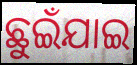
ଛୁଇଁଯାଇ